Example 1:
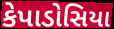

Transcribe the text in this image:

કેપાડોસિયા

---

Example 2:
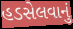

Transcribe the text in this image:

હડસેલવાનું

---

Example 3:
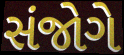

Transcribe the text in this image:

સંજોગે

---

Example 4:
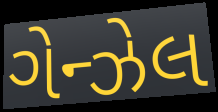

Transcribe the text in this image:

ગેન્ઝેલ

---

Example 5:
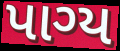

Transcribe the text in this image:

પાગ્ય